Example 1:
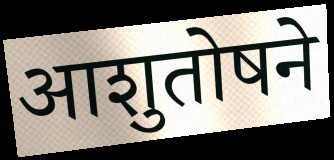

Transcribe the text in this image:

आशुतोषने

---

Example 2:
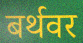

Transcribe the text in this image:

बर्थवर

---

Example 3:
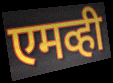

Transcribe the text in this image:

एमव्ही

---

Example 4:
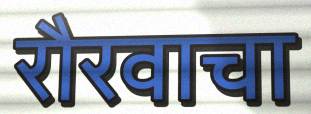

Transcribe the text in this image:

रौरवाचा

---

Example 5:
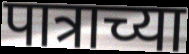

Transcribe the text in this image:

पात्राच्‍या